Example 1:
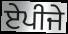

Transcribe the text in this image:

ਏਪੀਜੇ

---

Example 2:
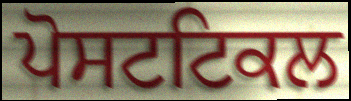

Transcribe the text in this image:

ਪੋਸਟਟਿਕਲ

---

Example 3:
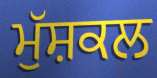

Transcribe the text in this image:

ਮੁੱਸ਼ਕਲ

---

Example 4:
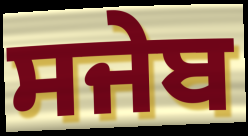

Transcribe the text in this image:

ਸਜੇਬ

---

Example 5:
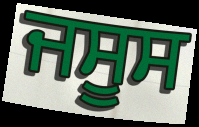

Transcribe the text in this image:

ਜਸੂਸ